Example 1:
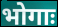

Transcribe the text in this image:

भोगाः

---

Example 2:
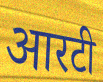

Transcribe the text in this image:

आरटी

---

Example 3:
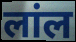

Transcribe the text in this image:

लांल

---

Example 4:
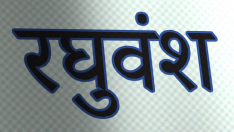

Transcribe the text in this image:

रघुवंश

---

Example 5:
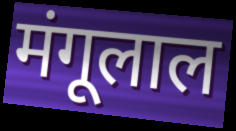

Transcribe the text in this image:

मंगूलाल